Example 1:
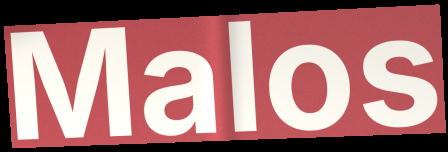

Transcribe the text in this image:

Malos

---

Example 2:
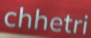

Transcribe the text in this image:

chhetri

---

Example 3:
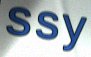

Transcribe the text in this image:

ssy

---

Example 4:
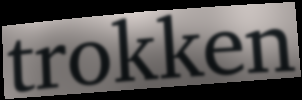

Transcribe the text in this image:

trokken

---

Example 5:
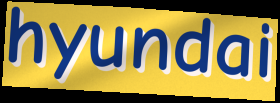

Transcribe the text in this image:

hyundai